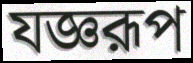
যজ্ঞরূপ